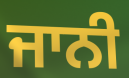
ਜਾਨੀ